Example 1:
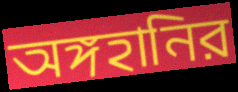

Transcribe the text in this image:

অঙ্গহানির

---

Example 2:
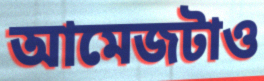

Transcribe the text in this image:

আমেজটাও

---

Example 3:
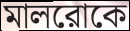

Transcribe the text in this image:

মালরোকে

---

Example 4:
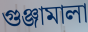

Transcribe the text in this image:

গুঞ্জামালা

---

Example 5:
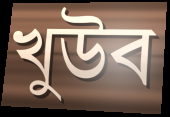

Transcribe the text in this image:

খুউব